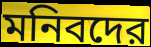
মনিবদের